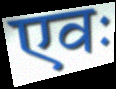
एवः